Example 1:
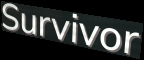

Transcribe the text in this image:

Survivor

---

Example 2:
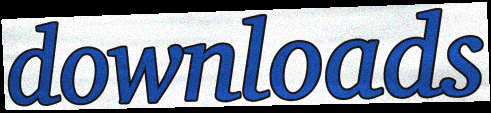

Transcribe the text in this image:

downloads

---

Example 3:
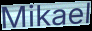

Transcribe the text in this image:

Mikael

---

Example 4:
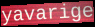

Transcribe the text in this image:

yavarige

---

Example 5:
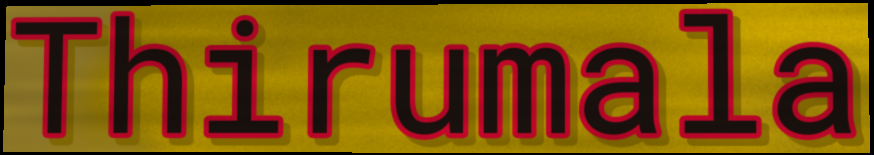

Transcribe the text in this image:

Thirumala